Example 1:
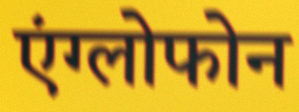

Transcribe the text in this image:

एंग्लोफोन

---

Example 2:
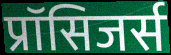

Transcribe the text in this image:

प्रॉसिजर्स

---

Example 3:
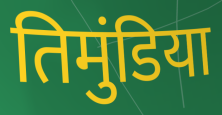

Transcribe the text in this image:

तिमुंडिया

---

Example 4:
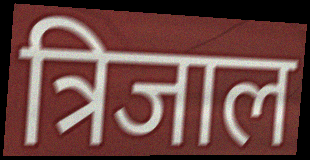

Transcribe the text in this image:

त्रिजाल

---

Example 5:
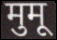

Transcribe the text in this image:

मुमू